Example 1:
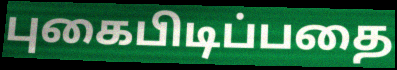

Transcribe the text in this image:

புகைபிடிப்பதை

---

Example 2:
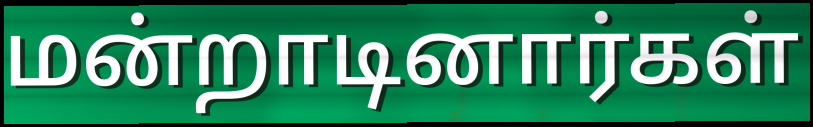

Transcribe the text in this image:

மன்றாடினார்கள்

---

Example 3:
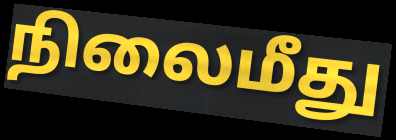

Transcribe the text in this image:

நிலைமீது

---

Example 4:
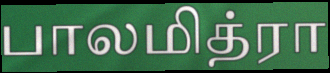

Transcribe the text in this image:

பாலமித்ரா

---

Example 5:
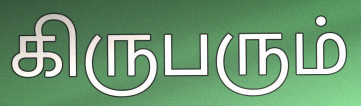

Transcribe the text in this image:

கிருபரும்